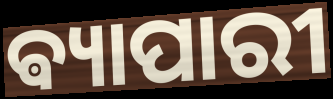
ଵ୍ୟାପାରୀ